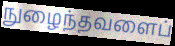
நுழைந்தவளைப்